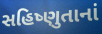
સહિષ્ણુતાનાં